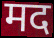
मद